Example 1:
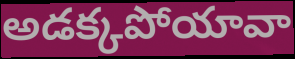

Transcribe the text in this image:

అడక్కపోయావా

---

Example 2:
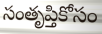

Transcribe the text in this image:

సంతృప్తికోసం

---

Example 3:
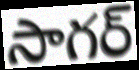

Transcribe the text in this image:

సాగర్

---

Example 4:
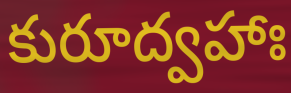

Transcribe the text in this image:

కురూద్వహాః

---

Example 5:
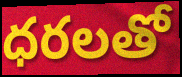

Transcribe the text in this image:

ధరలతో